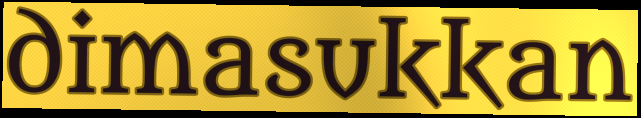
dimasukkan